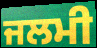
ਜਲਮੀ